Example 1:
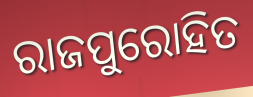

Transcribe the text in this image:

ରାଜପୁରୋହିତ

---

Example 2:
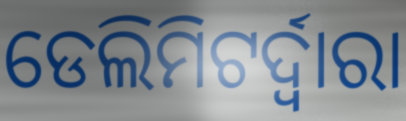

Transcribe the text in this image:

ଡେଲିମିଟର୍ଦ୍ୱାରା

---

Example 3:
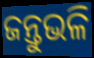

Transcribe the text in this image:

ଜନ୍ତୁଭଳି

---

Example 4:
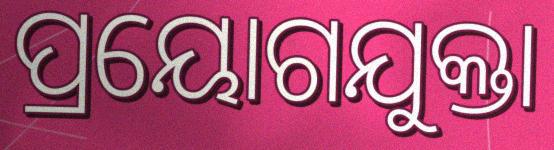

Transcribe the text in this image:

ପ୍ରୟୋଗଯୁକ୍ତା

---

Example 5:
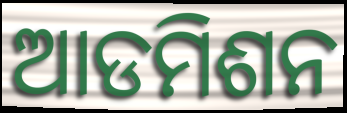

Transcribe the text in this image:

ଆଡମିଶନ